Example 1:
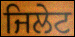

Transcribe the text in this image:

ਜਿਲੇਟ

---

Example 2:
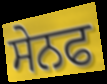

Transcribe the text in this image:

ਸੇਨਫ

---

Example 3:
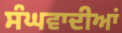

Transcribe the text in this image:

ਸੰਘਵਾਦੀਆਂ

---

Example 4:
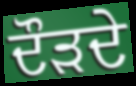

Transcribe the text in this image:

ਦੌੜਦੇ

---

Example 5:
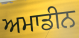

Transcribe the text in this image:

ਅਮਾਡੀਨ